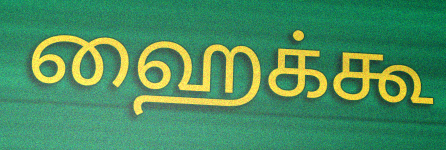
ஹைக்கூ